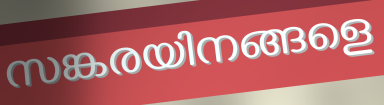
സങ്കരയിനങ്ങളെ